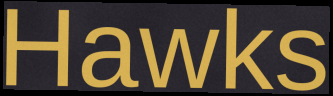
Hawks